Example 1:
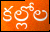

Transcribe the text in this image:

కల్లోల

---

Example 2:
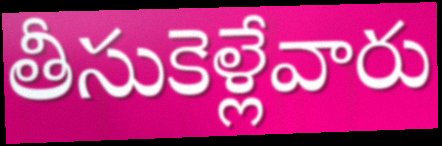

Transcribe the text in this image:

తీసుకెళ్లేవారు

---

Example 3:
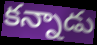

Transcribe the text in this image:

కన్నాడు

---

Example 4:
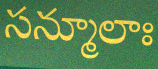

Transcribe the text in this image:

సన్మూలాః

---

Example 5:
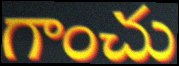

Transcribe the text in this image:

గాంచు